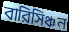
বারিসিঞ্চন